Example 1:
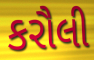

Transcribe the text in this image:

કરૌલી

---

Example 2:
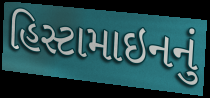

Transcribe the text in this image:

હિસ્ટામાઇનનું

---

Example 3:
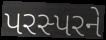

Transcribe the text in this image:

પરસ્પરને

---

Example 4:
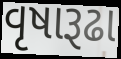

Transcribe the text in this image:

વૃષારૂઢા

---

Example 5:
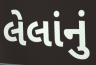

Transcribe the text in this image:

લેલાંનું